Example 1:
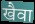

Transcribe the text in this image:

खैवा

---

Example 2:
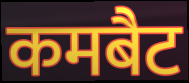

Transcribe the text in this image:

कमबैट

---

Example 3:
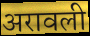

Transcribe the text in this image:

अरावली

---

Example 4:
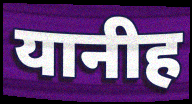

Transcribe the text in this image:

यानीह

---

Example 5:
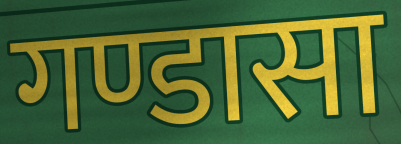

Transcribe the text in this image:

गण्डासा